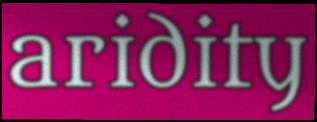
aridity